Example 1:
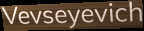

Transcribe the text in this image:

Vevseyevich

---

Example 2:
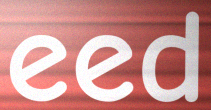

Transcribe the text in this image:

eed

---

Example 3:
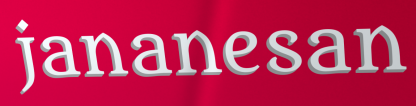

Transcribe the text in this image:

jananesan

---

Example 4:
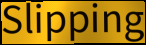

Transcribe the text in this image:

Slipping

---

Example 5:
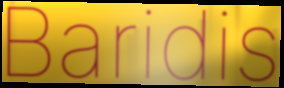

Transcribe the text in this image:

Baridis